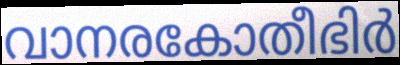
വാനരകോതീഭിർ